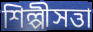
শিল্পীসত্তা